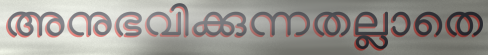
അനുഭവിക്കുന്നതല്ലാതെ